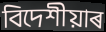
বিদেশীয়াৰ